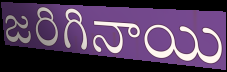
జరిగినాయి